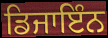
ਡਿਜਾਇੰਨ